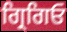
ਗ੍ਰਿਗਿਓ